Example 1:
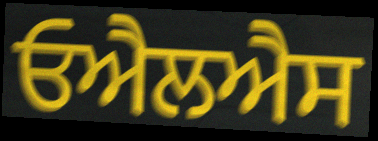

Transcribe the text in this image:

ਓਐਲਐਸ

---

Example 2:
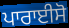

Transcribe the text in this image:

ਪਾਰਾਈਸੋ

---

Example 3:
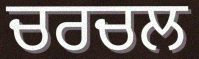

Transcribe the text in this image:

ਚਰਚਲ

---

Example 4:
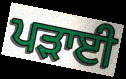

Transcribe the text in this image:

ਪੜਾਈ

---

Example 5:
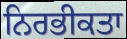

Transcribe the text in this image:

ਨਿਰਭੀਕਤਾ